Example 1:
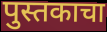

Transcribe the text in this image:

पुस्तकाचा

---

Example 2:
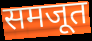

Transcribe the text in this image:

समजूत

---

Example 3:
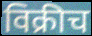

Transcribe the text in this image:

विक्रीच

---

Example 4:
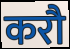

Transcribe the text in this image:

करौ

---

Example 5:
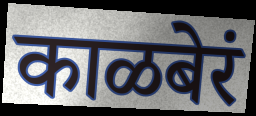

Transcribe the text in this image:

काळबेरं